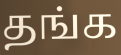
தங்க